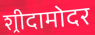
श्रीदामोदर